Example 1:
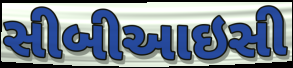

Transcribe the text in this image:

સીબીઆઇસી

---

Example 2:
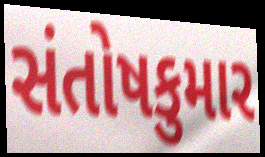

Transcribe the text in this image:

સંતોષકુમાર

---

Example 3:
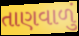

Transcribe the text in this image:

તાણવાળું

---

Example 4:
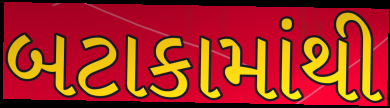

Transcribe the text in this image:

બટાકામાંથી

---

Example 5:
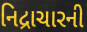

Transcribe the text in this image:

નિદ્રાચારની